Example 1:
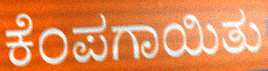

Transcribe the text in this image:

ಕೆಂಪಗಾಯಿತು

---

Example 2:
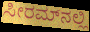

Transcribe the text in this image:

ಸೀರಮ್‌ನಲ್ಲಿ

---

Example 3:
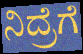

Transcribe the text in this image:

ನಿದ್ರೆಗೆ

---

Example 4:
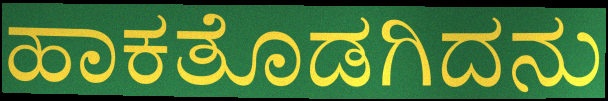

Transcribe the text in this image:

ಹಾಕತೊಡಗಿದನು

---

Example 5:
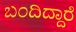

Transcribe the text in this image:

ಬಂದಿದ್ದಾರೆ